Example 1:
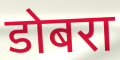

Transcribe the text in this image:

डोबरा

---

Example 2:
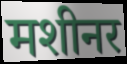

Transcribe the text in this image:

मशीनर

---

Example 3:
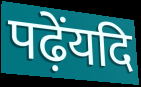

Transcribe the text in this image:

पढ़ेंयदि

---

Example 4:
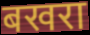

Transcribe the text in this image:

बखरा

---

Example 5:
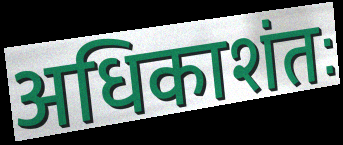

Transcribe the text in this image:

अधिकाशंतः